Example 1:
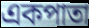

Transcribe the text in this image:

একপাতা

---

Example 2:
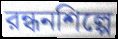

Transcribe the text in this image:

রন্ধনশিল্পে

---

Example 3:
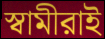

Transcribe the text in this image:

স্বামীরাই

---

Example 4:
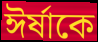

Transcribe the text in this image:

ঈর্ষাকে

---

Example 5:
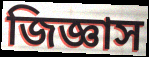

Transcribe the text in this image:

জিজ্ঞাস